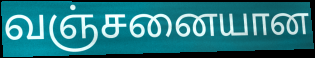
வஞ்சனையான